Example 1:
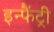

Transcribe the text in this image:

इन्फैंट्री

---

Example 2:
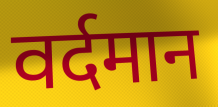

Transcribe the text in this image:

वर्दमान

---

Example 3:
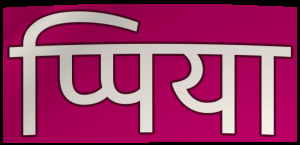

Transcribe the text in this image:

प्पिया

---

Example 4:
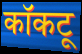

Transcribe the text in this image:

कॉकटू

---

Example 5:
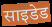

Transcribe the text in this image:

साइडेड